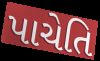
પાચેતિ